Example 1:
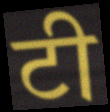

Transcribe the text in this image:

टी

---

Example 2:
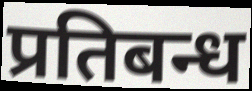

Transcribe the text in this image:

प्रतिबन्ध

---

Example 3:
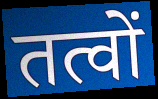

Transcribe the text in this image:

तत्वों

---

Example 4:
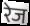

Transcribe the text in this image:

रेज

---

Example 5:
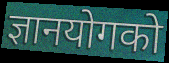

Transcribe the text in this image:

ज्ञानयोगको